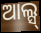
ଆଲ୍ସ୍